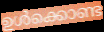
ഉൾക്കൊണ്ട